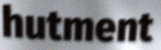
hutment